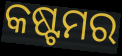
କଷ୍ଟମର